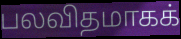
பலவிதமாகக்